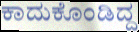
ಕಾದುಕೊಂಡಿದ್ದ